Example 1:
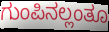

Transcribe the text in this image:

ಗುಂಪಿನಲ್ಲಂತೂ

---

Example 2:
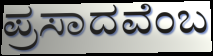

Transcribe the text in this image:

ಪ್ರಸಾದವೆಂಬ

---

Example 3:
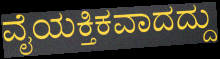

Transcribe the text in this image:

ವೈಯಕ್ತಿಕವಾದದ್ದು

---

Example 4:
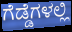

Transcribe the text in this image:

ಗೆಡ್ಡೆಗಳಲ್ಲಿ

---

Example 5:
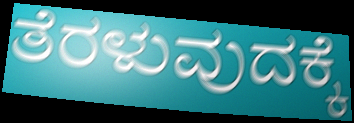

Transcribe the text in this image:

ತೆರಳುವುದಕ್ಕೆ